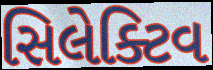
સિલેક્ટિવ